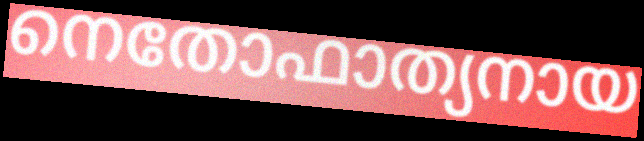
നെതോഫാത്യനായ